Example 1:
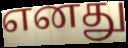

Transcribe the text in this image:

எனது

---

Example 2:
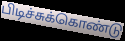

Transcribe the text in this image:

பிடிச்சுக்கொண்டு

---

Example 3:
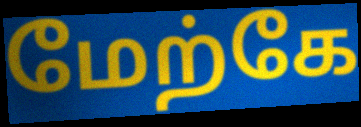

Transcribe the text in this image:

மேற்கே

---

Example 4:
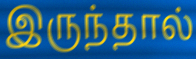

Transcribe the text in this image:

இருந்தால்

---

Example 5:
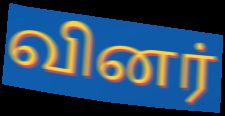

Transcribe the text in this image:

வினர்